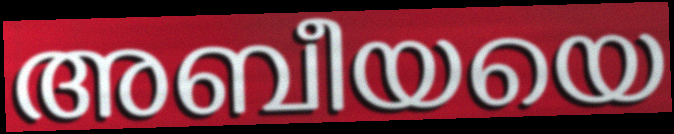
അബീയയെ